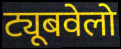
ट्यूबवेलो